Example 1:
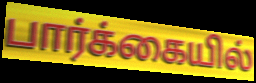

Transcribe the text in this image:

பார்க்கையில்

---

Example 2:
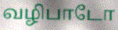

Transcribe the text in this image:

வழிபாடோ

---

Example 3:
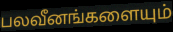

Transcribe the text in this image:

பலவீனங்களையும்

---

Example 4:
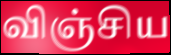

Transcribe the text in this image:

விஞ்சிய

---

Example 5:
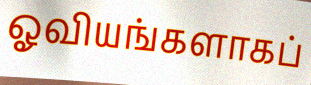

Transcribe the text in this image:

ஓவியங்களாகப்